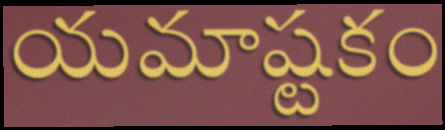
యమాష్టకం